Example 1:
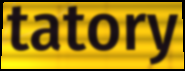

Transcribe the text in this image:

tatory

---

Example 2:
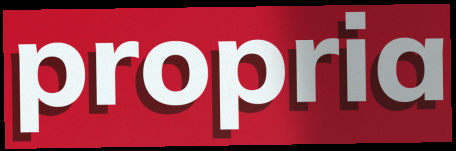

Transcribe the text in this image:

propria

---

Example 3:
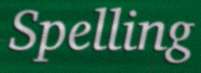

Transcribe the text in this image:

Spelling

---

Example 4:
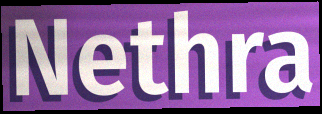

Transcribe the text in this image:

Nethra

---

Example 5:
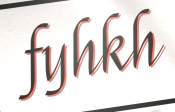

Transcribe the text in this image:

fyhkh